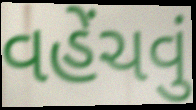
વહેંચવું